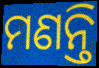
ମଣନ୍ତି